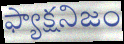
ఫ్యాక్షనిజం